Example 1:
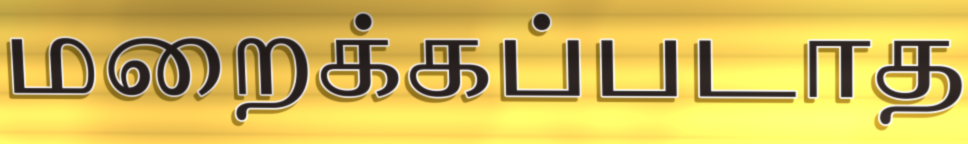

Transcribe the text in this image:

மறைக்கப்படாத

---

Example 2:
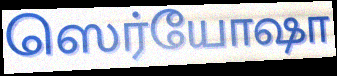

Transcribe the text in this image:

ஸெர்யோஷா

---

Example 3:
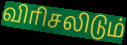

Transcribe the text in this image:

விரிசலிடும்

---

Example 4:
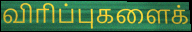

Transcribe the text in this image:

விரிப்புகளைக்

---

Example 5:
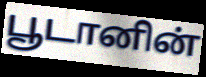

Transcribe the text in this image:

பூடானின்